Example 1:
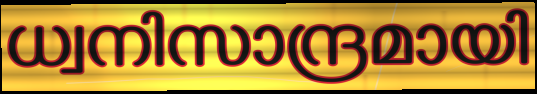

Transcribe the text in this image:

ധ്വനിസാന്ദ്രമായി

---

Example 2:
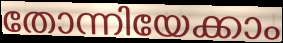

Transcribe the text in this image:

തോന്നിയേക്കാം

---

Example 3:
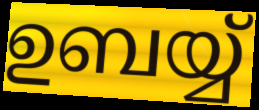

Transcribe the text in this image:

ഉബയ്യ്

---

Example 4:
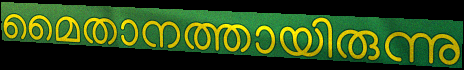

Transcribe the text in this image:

മൈതാനത്തായിരുന്നു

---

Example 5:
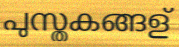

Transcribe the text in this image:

പുസ്തകങ്ങള്